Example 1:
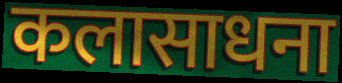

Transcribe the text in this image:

कलासाधना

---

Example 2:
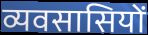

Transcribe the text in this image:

व्यवसासियों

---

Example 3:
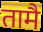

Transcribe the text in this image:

तामै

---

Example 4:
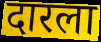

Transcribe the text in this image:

दारला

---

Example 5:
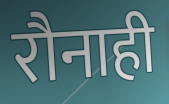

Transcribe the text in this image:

रौनाही